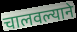
चालवल्याने